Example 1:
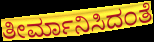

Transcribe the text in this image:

ತೀರ್ಮಾನಿಸಿದಂತೆ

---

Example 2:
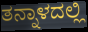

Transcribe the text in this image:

ತನ್ನಾಳದಲ್ಲಿ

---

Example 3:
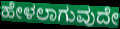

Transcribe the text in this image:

ಹೇಳಲಾಗುವುದೇ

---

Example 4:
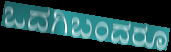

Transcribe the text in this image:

ಒದಗಿಬಂದರೂ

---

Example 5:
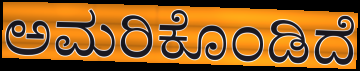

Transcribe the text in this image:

ಅಮರಿಕೊಂಡಿದೆ